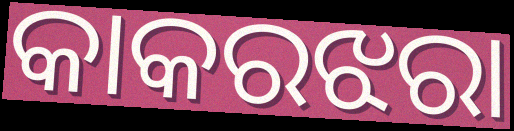
କାକରଝରା